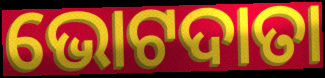
ଭୋଟଦାତା